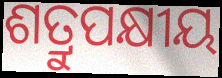
ଶତ୍ରୁପକ୍ଷୀୟ